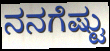
ನನಗೆಷ್ಟು